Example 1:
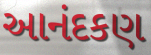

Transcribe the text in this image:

આનંદકણ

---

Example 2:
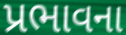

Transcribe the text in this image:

પ્રભાવના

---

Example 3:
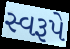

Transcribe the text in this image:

સ્વરૂપે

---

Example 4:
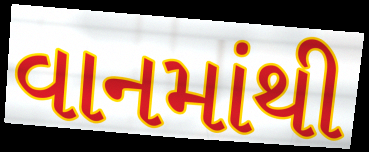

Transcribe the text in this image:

વાનમાંથી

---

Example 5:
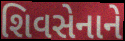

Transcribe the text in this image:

શિવસેનાને